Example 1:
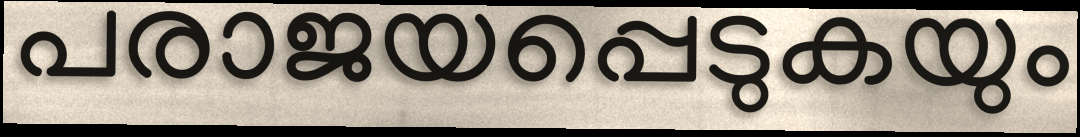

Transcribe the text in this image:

പരാജയപ്പെടുകയും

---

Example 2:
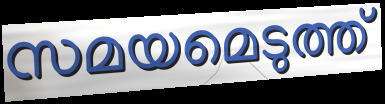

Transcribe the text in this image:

സമയമെടുത്ത്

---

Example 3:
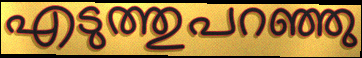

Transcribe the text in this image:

എടുത്തുപറഞ്ഞു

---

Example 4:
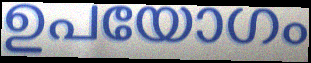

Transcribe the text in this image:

ഉപയോഗം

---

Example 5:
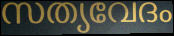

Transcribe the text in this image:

സത്യവേദം